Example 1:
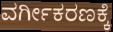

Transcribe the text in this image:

ವರ್ಗೀಕರಣಕ್ಕೆ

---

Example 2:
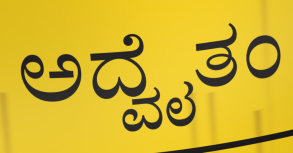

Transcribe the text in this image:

ಅದ್ವೈತಂ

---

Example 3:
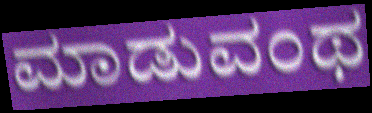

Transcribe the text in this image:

ಮಾಡುವಂಥ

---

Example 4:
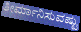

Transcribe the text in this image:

ತೀರ್ಮಾನಿಸುವಷ್ಟು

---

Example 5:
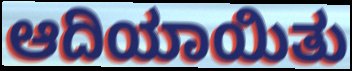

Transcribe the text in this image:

ಆದಿಯಾಯಿತು